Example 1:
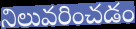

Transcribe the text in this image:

నిలువరించడం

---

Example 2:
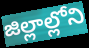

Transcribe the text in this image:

జిల్లాల్లోని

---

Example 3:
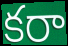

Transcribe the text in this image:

కరా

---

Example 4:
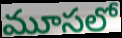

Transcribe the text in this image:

మూసలో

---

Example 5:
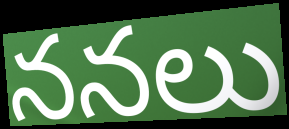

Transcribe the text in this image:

ననలు